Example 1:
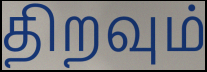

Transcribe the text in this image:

திறவும்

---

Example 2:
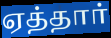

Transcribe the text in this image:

ஏத்தார்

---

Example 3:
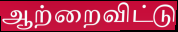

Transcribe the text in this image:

ஆற்றைவிட்டு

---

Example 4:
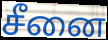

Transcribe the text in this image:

சீனை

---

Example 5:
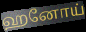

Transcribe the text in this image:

ஹனோய்